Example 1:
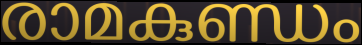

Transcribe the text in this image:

രാമകുണ്ഡം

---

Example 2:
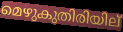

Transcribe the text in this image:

മെഴുകുതിരിയില്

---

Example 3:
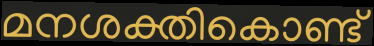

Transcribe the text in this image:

മനശക്തികൊണ്ട്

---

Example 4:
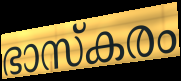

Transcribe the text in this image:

ഭാസ്കരം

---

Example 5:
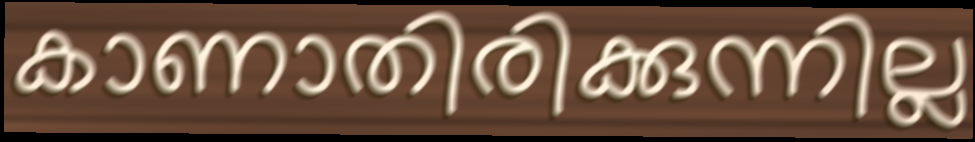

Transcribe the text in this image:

കാണാതിരിക്കുന്നില്ല